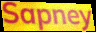
Sapney